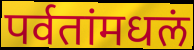
पर्वतांमधलं